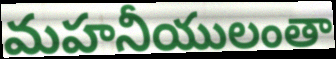
మహనీయులంతా